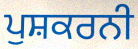
ਪੁਸ਼ਕਰਨੀ